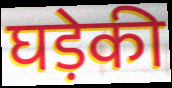
घड़ेकी